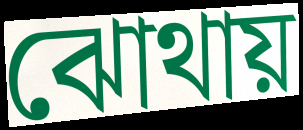
ঝোথায়